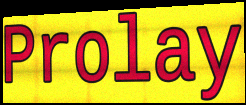
Prolay